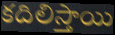
కదిలిస్తాయి